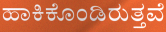
ಹಾಕಿಕೊಂಡಿರುತ್ತವೆ